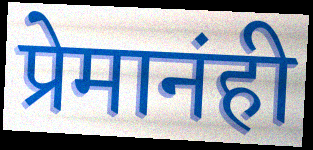
प्रेमानंही